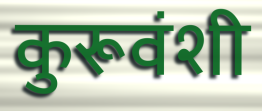
कुरूवंशी